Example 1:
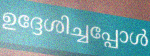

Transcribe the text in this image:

ഉദ്ദേശിച്ചപ്പോൾ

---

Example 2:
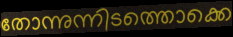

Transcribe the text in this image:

തോന്നുന്നിടത്തൊക്കെ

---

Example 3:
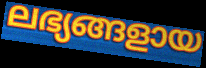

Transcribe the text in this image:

ലഭ്യങ്ങളായ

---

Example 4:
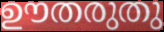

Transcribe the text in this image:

ഊതരുതു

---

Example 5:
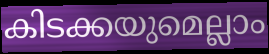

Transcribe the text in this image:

കിടക്കയുമെല്ലാം